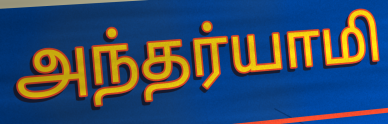
அந்தர்யாமி